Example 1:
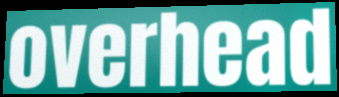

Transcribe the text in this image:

overhead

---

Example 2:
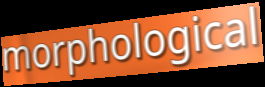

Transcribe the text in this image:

morphological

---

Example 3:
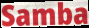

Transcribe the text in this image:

Samba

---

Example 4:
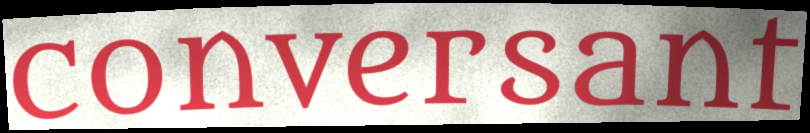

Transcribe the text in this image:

conversant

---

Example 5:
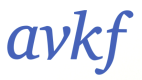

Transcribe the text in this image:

avkf